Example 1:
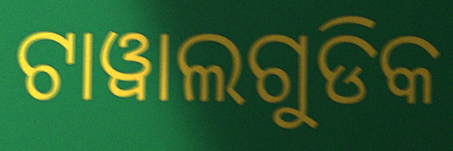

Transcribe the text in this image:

ଟାୱାଲଗୁଡିକ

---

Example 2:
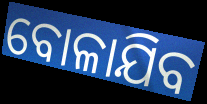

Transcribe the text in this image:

ବୋଳାଯିବ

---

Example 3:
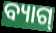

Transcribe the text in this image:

ବ୍ୟାଗ୍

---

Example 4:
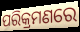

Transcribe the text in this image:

ପରିକ୍ରମଣରେ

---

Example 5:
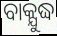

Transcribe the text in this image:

ବାକ୍ଯୁଦ୍ଧ